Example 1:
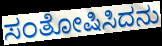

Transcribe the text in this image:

ಸಂತೋಷಿಸಿದನು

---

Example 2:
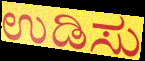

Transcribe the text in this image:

ಉಡಿಸು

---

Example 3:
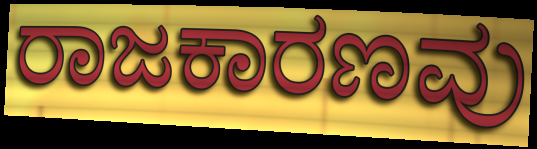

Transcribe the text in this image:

ರಾಜಕಾರಣವು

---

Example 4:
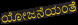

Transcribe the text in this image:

ಯೋಜನೆಯಂತೆ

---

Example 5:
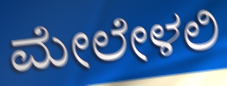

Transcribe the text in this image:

ಮೇಲೇಳಲಿ